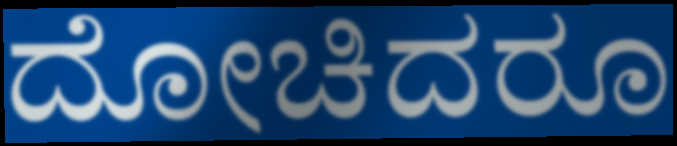
ದೋಚಿದರೂ